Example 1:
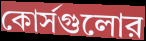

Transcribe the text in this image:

কোর্সগুলোর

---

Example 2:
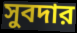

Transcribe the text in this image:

সুবদার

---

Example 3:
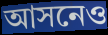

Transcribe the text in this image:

আসনেও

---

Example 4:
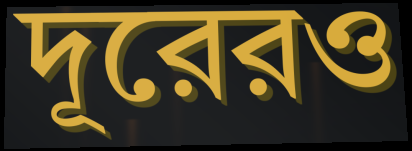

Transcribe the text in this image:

দূরেরও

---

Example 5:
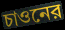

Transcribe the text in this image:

চাওনের